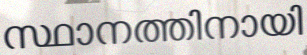
സ്ഥാനത്തിനായി